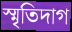
স্মৃতিদাগ